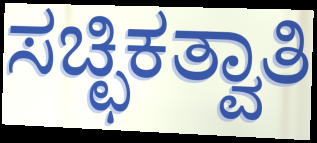
ಸಚ್ಛಿಕತ್ವಾತಿ